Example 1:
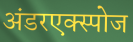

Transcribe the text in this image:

अंडरएक्स्पोज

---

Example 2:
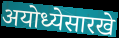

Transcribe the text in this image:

अयोध्येसारखे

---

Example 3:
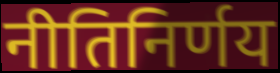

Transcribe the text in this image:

नीतिनिर्णय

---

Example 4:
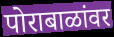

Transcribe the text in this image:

पोराबाळांवर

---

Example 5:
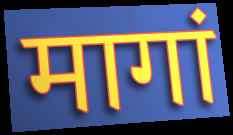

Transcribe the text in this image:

मागां